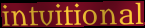
intuitional